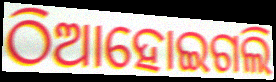
ଠିଆହୋଇଗଲି